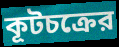
কূটচক্রের